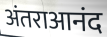
अंतराआनंद